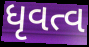
ધૃવત્વ